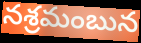
నశ్రమంబున